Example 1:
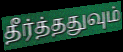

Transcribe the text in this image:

தீர்த்ததுவும்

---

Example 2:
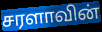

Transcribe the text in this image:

சரளாவின்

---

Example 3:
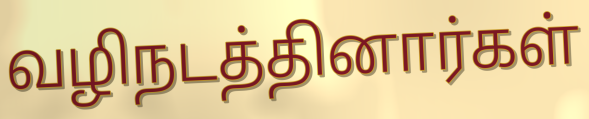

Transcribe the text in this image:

வழிநடத்தினார்கள்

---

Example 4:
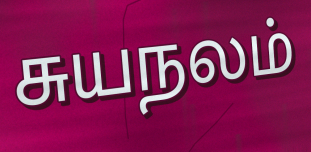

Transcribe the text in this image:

சுயநலம்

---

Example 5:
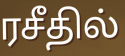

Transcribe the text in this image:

ரசீதில்